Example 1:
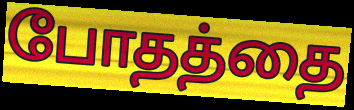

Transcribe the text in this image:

போதத்தை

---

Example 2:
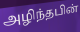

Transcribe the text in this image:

அழிந்தபின்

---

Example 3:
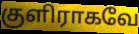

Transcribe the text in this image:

குளிராகவே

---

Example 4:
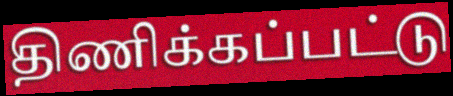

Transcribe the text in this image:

திணிக்கப்பட்டு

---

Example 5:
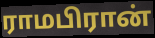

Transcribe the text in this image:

ராமபிரான்